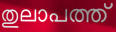
തുലാപത്ത്